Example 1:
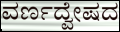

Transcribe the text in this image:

ವರ್ಣದ್ವೇಷದ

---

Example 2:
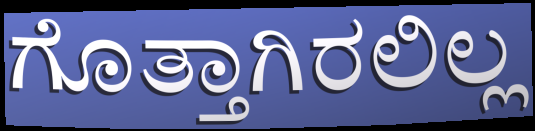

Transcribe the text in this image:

ಗೊತ್ತಾಗಿರಲಿಲ್ಲ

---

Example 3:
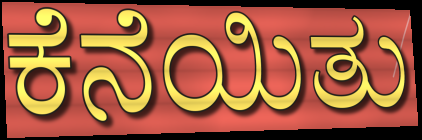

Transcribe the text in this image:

ಕೆನೆಯಿತು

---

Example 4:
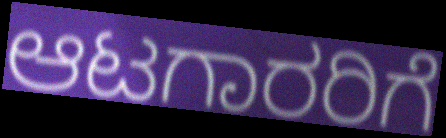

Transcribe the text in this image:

ಆಟಗಾರರಿಗೆ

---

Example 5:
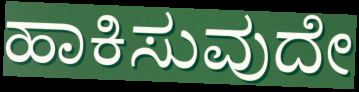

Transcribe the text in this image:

ಹಾಕಿಸುವುದೇ